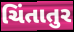
ચિંતાતુર